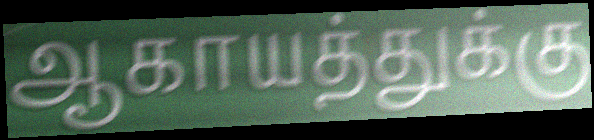
ஆகாயத்துக்கு